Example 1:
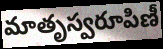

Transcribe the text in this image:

మాతృస్వరూపిణీ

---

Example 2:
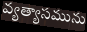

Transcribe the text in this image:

వ్యత్యాసమును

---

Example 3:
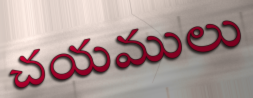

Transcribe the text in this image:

చయములు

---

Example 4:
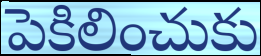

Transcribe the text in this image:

పెకిలించుకు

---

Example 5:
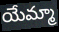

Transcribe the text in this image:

యేమ్మా